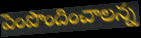
పెంపొందించాలన్న